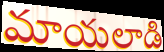
మాయలాడి